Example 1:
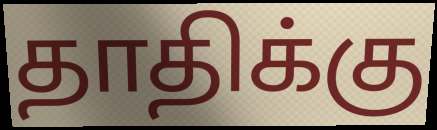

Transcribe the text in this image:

தாதிக்கு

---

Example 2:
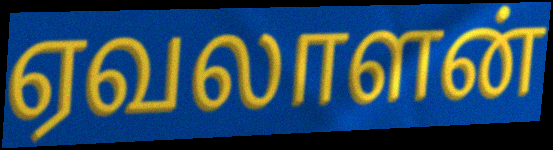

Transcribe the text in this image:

ஏவலாளன்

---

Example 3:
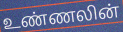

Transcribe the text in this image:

உண்ணலின்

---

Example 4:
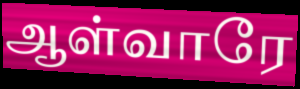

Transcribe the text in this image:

ஆள்வாரே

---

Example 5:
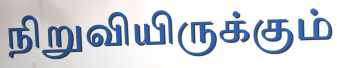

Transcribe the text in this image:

நிறுவியிருக்கும்